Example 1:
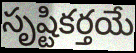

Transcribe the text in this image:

సృష్టికర్తయే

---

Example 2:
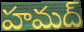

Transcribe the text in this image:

హమద్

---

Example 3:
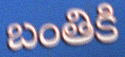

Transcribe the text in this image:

బంతికి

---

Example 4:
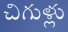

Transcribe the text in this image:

చిగుళ్లు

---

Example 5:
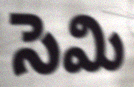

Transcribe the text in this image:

సెమి